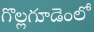
గొల్లగూడెంలో